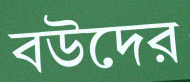
বউদের